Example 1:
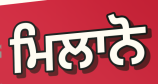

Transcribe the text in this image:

ਮਿਲਾਨੋ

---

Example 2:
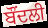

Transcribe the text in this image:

ਬੌਂਦਲੀ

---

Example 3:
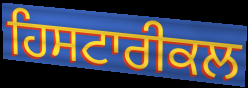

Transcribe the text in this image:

ਹਿਸਟਾਰੀਕਲ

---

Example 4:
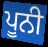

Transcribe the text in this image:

ਪੂਨੀ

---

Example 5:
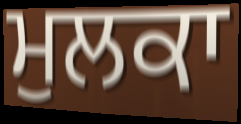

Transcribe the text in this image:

ਮੁਲਕਾ